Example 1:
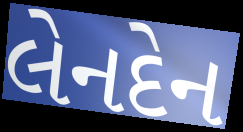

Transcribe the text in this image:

લેનદેન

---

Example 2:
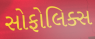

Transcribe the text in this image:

સોફોલિક્સ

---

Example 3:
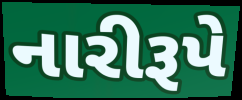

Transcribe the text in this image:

નારીરૂપે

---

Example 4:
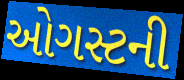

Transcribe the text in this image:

ઓગસ્ટની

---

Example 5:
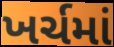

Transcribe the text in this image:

ખર્ચમાં